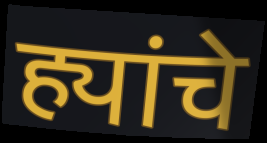
ह्यांचे